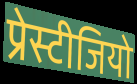
प्रेस्टीजियो